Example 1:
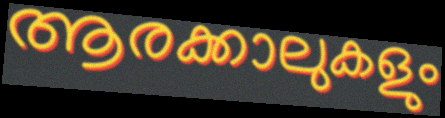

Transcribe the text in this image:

ആരക്കാലുകളും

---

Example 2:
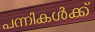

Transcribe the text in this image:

പന്നികൾക്ക്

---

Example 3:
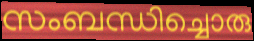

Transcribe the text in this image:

സംബന്ധിച്ചൊരു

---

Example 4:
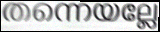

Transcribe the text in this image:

തന്നെയല്ലേ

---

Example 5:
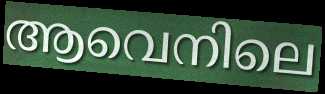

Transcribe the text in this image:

ആവെനിലെ